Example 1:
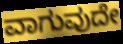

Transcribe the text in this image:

ವಾಗುವುದೇ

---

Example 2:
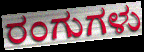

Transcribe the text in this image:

ರಂಗುಗಳು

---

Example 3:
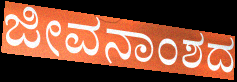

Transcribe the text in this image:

ಜೀವನಾಂಶದ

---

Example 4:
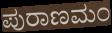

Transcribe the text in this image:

ಪುರಾಣಮಂ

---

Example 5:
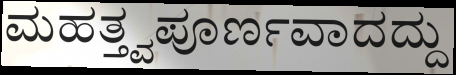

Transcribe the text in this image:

ಮಹತ್ತ್ವಪೂರ್ಣವಾದದ್ದು